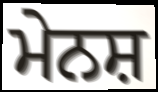
ਮੇਨਸ਼